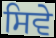
ਸਿਵੇ